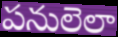
పనులెలా